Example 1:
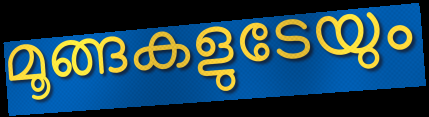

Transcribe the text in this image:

മൂങ്ങകളുടേയും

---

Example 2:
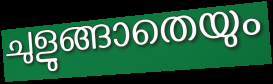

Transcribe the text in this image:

ചുളുങ്ങാതെയും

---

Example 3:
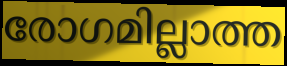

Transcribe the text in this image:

രോഗമില്ലാത്ത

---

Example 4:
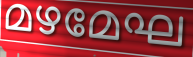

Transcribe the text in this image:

മഴമേഘ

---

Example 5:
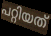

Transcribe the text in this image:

പറ്റിയത്